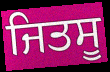
ਜਿਤਸੂ